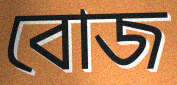
বোজ